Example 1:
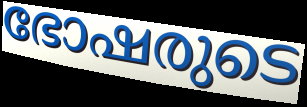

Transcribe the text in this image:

ഭോഷരുടെ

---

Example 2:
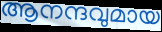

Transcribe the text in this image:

ആനന്ദവുമായ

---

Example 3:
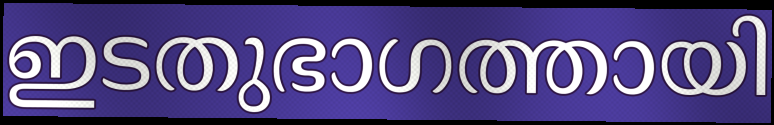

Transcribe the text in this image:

ഇടതുഭാഗത്തായി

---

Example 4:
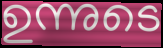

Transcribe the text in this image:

ഉന്നുടെ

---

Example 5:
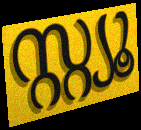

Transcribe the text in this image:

സ്റ്റ്യൂ